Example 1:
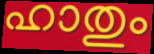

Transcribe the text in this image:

ഹാതും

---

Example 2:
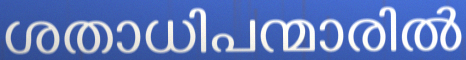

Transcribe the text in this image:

ശതാധിപന്മാരിൽ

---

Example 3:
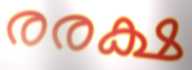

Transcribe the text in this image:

രരക്ഷ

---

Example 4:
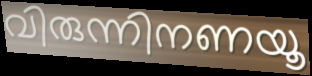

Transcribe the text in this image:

വിരുന്നിനണയൂ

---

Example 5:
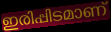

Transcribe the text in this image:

ഇരിപ്പിടമാണ്